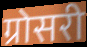
ग्रोसरी